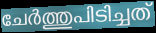
ചേർത്തുപിടിച്ചത്